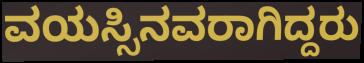
ವಯಸ್ಸಿನವರಾಗಿದ್ದರು